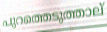
പുറത്തെടുത്താല്